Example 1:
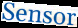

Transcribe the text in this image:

Sensor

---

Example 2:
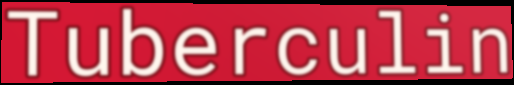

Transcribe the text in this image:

Tuberculin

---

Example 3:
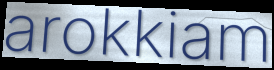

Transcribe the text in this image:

arokkiam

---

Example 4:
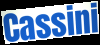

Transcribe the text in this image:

Cassini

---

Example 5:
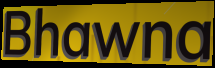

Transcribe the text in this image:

Bhawna